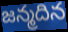
జన్మదిన